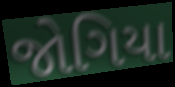
જોગિયા